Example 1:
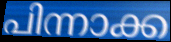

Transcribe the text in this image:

പിന്നാക്ക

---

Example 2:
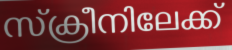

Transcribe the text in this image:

സ്‌ക്രീനിലേക്ക്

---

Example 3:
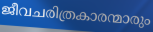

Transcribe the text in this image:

ജീവചരിത്രകാരന്മാരും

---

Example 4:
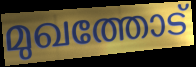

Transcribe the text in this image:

മുഖത്തോട്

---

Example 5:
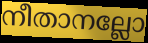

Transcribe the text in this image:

നീതാനല്ലോ